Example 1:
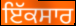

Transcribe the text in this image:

ਇੱਕਸਾਰ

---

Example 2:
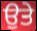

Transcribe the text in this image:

ਉਤੇ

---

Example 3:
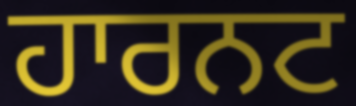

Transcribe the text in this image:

ਹਾਰਨਟ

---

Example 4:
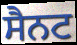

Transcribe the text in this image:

ਸੈਨਟ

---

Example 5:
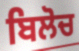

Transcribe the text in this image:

ਬਿਲੋਚ